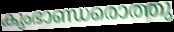
കുംഭാണ്ഡരൊത്തു